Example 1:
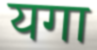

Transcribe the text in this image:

यगा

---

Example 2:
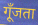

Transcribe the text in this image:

गूँजता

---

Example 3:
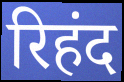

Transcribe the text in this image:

रिहंद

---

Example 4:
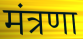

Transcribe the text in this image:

मंत्रणा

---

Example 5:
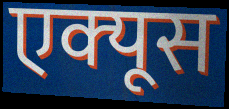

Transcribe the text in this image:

एक्यूस